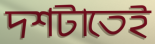
দশটাতেই